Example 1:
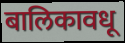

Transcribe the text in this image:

बालिकावधू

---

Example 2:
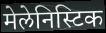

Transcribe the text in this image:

मेलेनिस्टिक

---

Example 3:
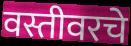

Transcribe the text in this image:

वस्तीवरचे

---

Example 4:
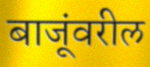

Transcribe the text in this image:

बाजूंवरील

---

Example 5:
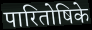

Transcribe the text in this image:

पारितोषिके